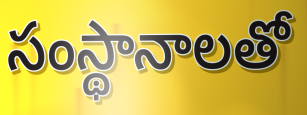
సంస్థానాలతో